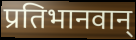
प्रतिभानवान्